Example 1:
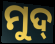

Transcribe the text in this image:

ମୁଦ୍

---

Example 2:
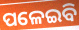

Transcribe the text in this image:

ପଳେଇବି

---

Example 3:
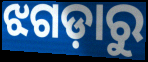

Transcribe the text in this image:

ଝଗଡ଼ାରୁ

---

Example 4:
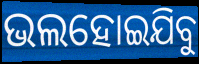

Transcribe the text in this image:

ଭଲହୋଇଯିବୁ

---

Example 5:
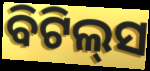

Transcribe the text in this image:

ବିଟିଲ୍‌ସ